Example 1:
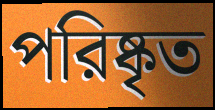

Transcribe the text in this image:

পরিষ্কৃত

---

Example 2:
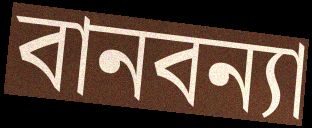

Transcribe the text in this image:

বানবন্যা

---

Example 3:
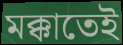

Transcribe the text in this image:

মক্কাতেই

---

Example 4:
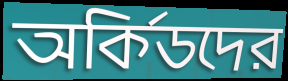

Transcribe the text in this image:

অর্কিডদের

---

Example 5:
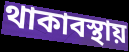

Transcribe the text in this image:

থাকাবস্থায়